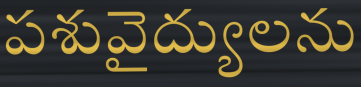
పశువైద్యులను